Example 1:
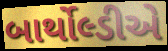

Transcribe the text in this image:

બાર્થોલ્ડીએ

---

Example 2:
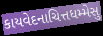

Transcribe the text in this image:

કાયવેદનાચિત્તધમ્મેસુ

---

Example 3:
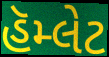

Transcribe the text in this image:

હૅમ્લેટ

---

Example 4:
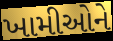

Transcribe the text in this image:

ખામીઓને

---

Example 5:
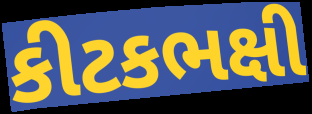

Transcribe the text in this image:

કીટકભક્ષી